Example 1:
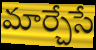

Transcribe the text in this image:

మార్చేసే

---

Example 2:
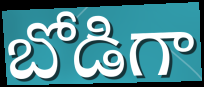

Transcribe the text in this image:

బోడిగా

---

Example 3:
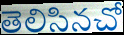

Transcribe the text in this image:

తెలిసినచో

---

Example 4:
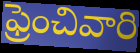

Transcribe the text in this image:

ఫ్రెంచివారి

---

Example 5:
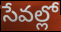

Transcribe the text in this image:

సేవల్లో